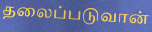
தலைப்படுவான்